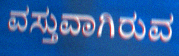
ವಸ್ತುವಾಗಿರುವ